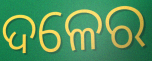
ଦଳେର